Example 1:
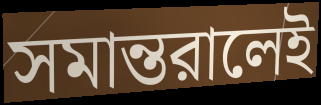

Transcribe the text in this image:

সমান্তরালেই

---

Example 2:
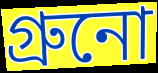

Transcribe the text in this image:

গ্রুনো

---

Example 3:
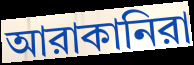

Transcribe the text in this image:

আরাকানিরা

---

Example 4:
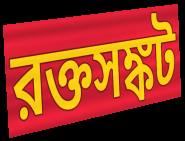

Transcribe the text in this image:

রক্তসঙ্কট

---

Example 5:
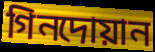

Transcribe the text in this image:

গিনদোয়ান